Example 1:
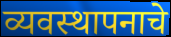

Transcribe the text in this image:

व्यवस्थापनाचे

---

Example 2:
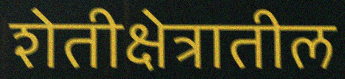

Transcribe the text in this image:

शेतीक्षेत्रातील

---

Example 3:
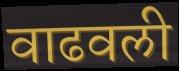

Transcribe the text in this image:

वाढवली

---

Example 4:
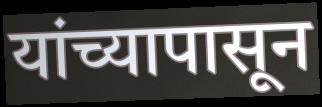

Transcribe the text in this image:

यांच्यापासून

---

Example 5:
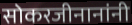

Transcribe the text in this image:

सोकरजीनानांनी